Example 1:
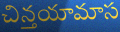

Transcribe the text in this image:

చిన్తయామాస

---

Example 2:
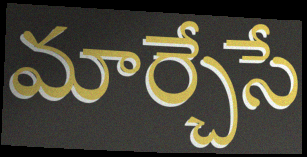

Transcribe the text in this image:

మార్చేసే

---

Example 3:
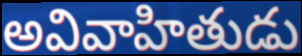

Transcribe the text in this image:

అవివాహితుడు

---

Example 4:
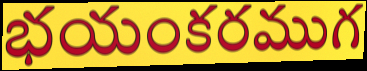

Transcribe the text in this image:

భయంకరముగ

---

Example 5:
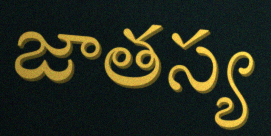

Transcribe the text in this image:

జాతస్య